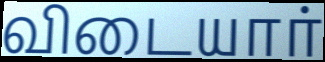
விடையார்